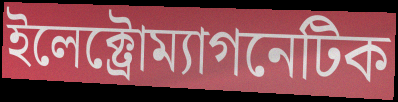
ইলেক্ট্রোম্যাগনেটিক